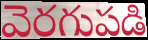
వెరగుపడి